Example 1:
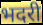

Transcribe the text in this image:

भदरी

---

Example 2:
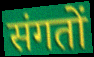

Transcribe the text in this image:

संगतों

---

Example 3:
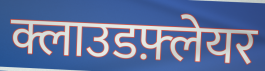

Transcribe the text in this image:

क्लाउडफ़्लेयर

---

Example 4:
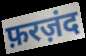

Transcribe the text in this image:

फ़रज़ंद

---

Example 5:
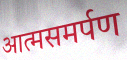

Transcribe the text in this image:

आत्मसमर्पण